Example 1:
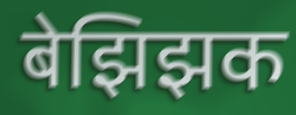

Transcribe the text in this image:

बेझिझक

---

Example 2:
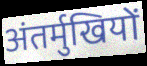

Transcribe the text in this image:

अंतर्मुखियों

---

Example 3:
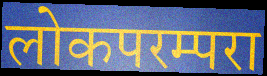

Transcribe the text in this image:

लोकपरम्परा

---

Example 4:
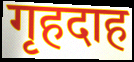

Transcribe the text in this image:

गृहदाह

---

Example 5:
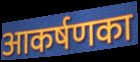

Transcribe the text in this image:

आकर्षणका